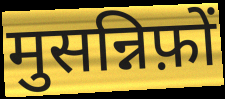
मुसन्निफ़ों